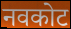
नवकोट